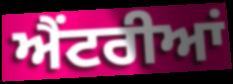
ਐਂਟਰੀਆਂ